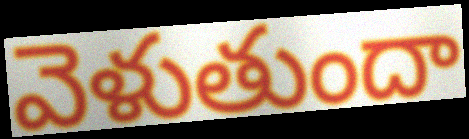
వెళుతుందా